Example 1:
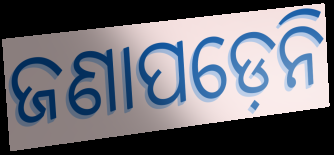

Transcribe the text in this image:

ଜଣାପଡ଼େନି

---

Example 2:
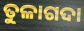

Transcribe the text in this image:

ତୁଳାଗଦା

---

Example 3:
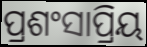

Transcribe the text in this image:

ପ୍ରଶଂସାପ୍ରିୟ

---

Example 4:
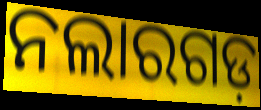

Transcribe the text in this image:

ନଲାରଗଡ଼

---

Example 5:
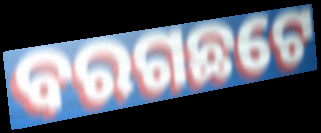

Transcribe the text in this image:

ବରଗଛଟେ